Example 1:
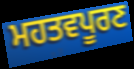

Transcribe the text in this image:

ਮਹਤਵਪੂਰਣ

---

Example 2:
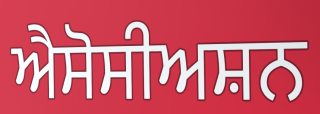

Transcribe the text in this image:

ਐਸੋਸੀਅਸ਼ਨ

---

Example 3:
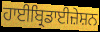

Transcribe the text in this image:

ਹਾਈਬ੍ਰਿਡਾਈਜ਼ੇਸ਼ਨ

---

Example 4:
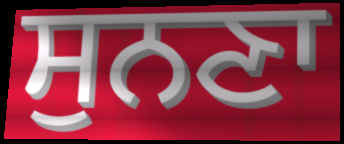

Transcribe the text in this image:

ਸੁਨਣਾ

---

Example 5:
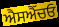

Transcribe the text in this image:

ਐਸਐੱਚਓ